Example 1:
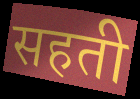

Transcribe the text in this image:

सहती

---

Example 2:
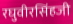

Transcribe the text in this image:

रघुवीरसिंहजी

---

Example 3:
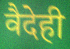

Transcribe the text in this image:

वैदेही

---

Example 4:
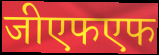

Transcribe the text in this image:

जीएफएफ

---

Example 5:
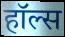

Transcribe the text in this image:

हॉल्स